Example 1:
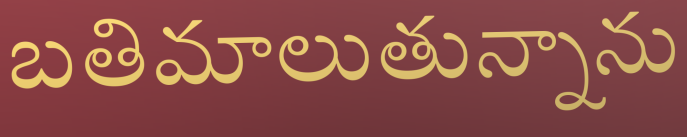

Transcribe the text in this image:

బతిమాలుతున్నాను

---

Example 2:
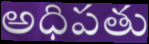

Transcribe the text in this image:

అధిపతు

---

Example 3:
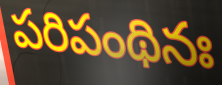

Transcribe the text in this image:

పరిపంథినః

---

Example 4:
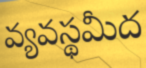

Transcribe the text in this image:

వ్యవస్థమీద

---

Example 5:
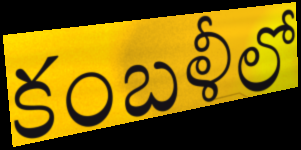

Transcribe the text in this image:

కంబళీలో